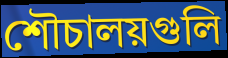
শৌচালয়গুলি